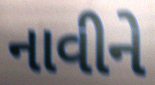
નાવીને